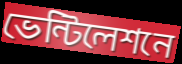
ভেন্টিলেশনে